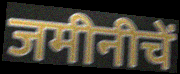
जमीनीचें